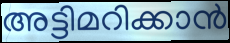
അട്ടിമറിക്കാൻ